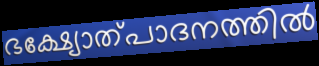
ഭക്ഷ്യോത്പാദനത്തിൽ